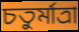
চতুর্মাত্রা